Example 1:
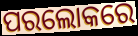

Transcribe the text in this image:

ପରଲୋକରେ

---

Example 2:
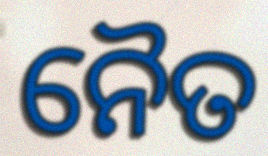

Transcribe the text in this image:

ନୈତ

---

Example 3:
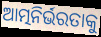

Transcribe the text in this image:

ଆତ୍ମନିର୍ଭରତାକୁ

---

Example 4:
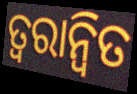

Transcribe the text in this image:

ତ୍ୱରାନ୍ଵିତ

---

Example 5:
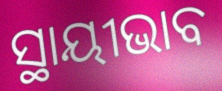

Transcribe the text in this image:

ସ୍ଥାୟୀଭାବ